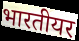
भारतीयर